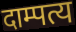
दाम्पत्य